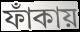
ফাঁকায়